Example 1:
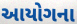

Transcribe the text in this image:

આયોગના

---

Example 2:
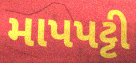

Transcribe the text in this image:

માપપટ્ટી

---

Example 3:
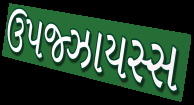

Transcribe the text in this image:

ઉપજ્ઝાયસ્સ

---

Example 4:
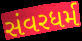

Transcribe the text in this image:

સંવરધર્મ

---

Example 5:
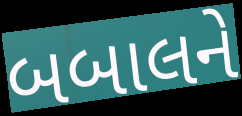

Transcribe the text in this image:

બબાલને